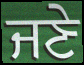
ਜਣੇ